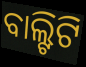
ବାଲ୍ଟିଟି